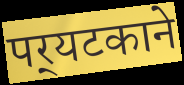
पर्यटकाने